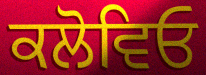
ਕਲੋਵਿਓ